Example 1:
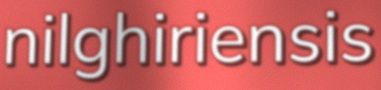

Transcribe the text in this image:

nilghiriensis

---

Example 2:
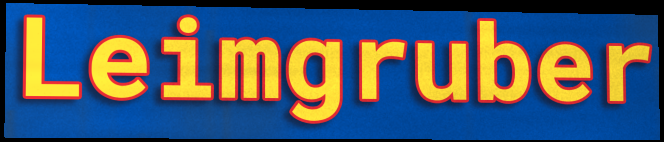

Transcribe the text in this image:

Leimgruber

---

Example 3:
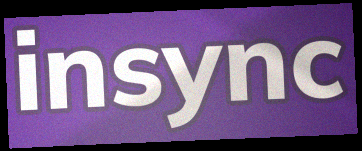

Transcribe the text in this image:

insync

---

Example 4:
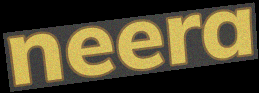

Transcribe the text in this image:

neera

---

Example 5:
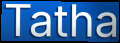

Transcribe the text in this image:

Tatha